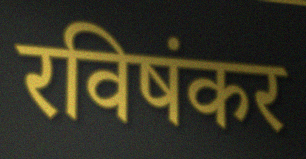
रविषंकर